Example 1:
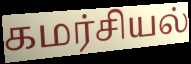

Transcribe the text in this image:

கமர்சியல்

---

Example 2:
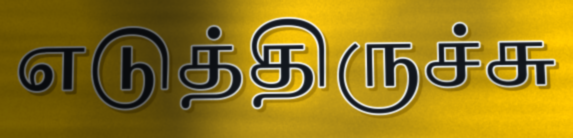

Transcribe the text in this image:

எடுத்திருச்சு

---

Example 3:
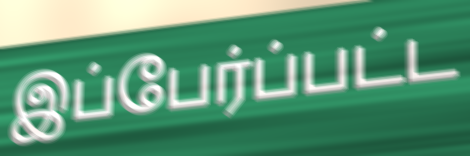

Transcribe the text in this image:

இப்பேர்ப்பட்ட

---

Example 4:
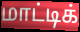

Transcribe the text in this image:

மாட்டிக்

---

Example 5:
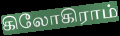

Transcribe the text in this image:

கிலோகிராம்